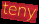
teny